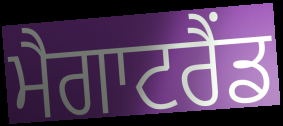
ਮੈਗਾਟਰੈਂਡ